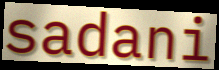
sadani